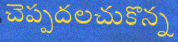
చెప్పదలచుకొన్న